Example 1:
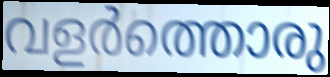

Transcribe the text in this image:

വളർത്തൊരു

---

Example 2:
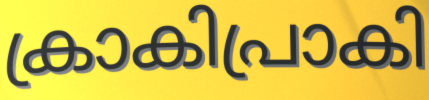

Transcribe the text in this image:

ക്രാകിപ്രാകി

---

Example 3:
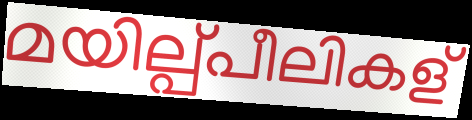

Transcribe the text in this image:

മയില്പ്പീലികള്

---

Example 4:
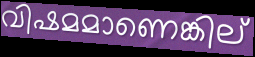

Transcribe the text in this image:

വിഷമമാണെങ്കില്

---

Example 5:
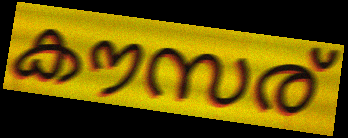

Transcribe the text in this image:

കൗസര്